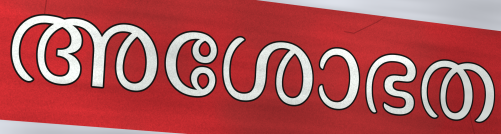
അശോഭത